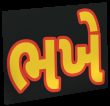
ભખે